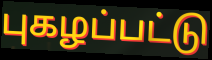
புகழப்பட்டு